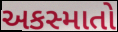
અકસ્માતો